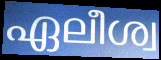
ഏലീശ്വ